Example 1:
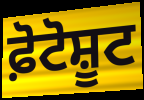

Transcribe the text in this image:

ਫ਼ੋਟੋਸ਼ੂਟ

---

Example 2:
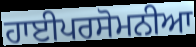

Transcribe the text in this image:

ਹਾਈਪਰਸੋਮਨੀਆ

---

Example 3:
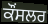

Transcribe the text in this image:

ਕੌੰਸਲਰ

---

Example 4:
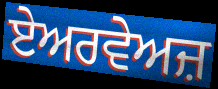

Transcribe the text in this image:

ਏਅਰਵੇਅਜ਼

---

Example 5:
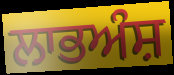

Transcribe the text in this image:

ਲਾਭਅੰਸ਼